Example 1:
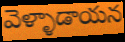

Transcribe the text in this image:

వెళ్ళాడాయన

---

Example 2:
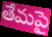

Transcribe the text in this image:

తేమపై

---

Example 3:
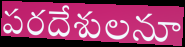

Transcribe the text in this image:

పరదేశులనూ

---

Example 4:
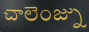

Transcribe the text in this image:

చాలెంజ్ను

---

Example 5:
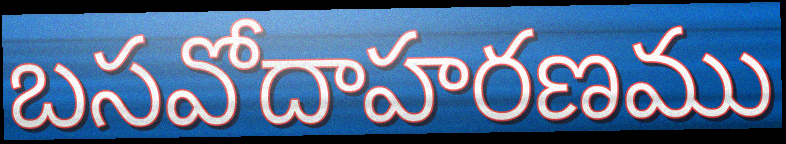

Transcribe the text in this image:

బసవోదాహరణము